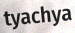
tyachya